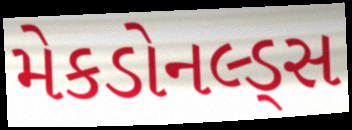
મેકડોનલ્ડ્સ